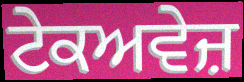
ਟੇਕਅਵੇਜ਼